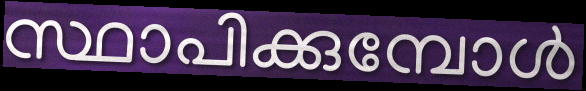
സ്ഥാപിക്കുമ്പോൾ